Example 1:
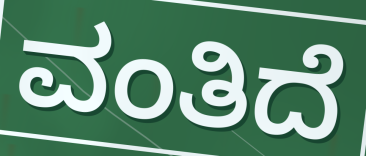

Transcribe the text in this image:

ವಂತಿದೆ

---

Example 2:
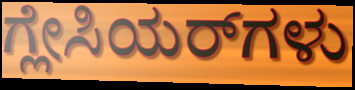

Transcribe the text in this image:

ಗ್ಲೇಸಿಯರ್‌ಗಳು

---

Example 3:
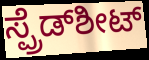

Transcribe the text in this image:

ಸ್ಪ್ರೆಡ್‌ಶೀಟ್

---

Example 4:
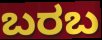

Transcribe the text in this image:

ಬರಬ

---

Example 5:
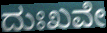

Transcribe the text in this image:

ದುಃಖವೇ